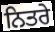
ਨਿਤਰੇ